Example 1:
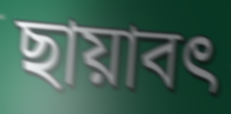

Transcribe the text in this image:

ছায়াবৎ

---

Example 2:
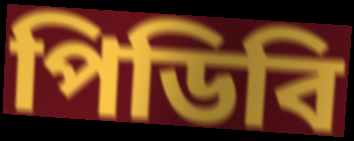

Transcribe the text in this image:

পিডিবি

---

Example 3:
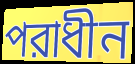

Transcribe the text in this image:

পরাধীন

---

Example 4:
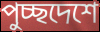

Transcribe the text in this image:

পুচ্ছদেশে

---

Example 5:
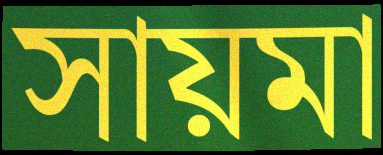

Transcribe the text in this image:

সায়মা